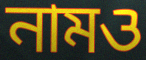
নামও